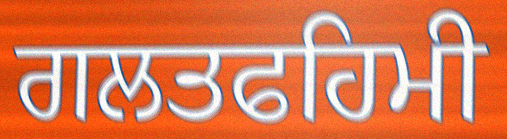
ਗਲਤਫਹਿਮੀ